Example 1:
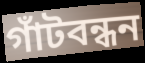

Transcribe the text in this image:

গাঁটবন্ধন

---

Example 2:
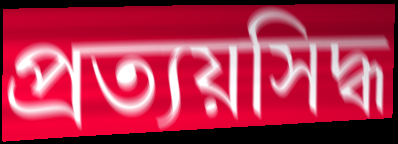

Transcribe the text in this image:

প্রত্যয়সিদ্ধ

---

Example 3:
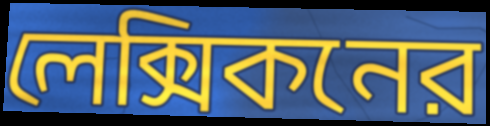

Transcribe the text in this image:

লেক্সিকনের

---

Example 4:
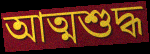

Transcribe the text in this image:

আত্মশুদ্ধ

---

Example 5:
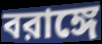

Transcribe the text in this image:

বরাঙ্গে